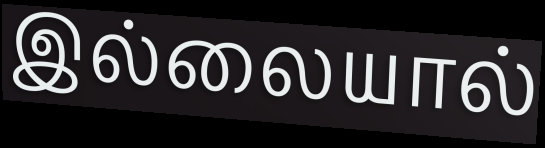
இல்லையால்